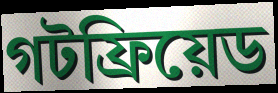
গটফ্রিয়েড